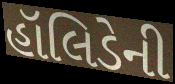
હૉલિડેની